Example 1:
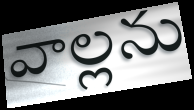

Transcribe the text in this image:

వాల్లను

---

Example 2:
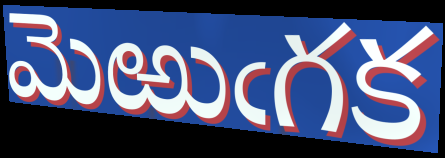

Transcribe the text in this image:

మెఱుఁగక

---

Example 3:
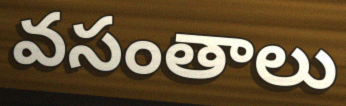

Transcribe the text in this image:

వసంతాలు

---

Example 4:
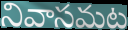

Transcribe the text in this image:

నివాసమట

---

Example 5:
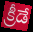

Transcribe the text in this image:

క్రీడే